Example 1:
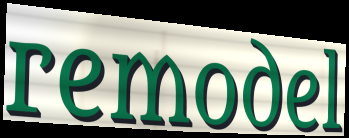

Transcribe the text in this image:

remodel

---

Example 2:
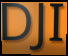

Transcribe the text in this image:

DJI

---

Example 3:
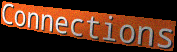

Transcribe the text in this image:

Connections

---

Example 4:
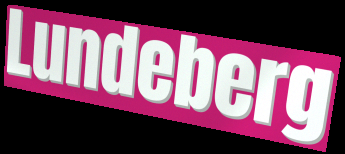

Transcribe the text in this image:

Lundeberg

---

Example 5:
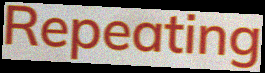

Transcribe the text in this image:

Repeating